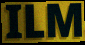
ILM